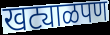
खट्याळपण